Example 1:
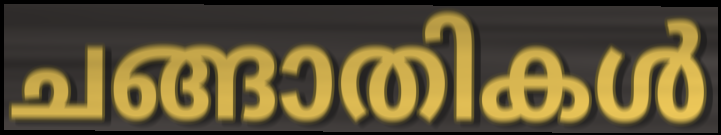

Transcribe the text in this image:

ചങ്ങാതികൾ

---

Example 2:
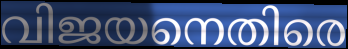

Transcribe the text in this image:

വിജയനെതിരെ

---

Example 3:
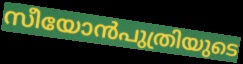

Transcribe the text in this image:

സീയോൻപുത്രിയുടെ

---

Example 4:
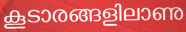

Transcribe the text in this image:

കൂടാരങ്ങളിലാണു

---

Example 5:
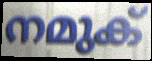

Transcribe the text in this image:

നമുക്